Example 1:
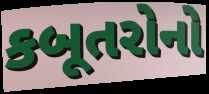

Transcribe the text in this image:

કબૂતરોનો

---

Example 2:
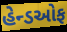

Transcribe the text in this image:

હેન્ડઓફ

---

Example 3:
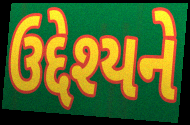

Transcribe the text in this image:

ઉદ્દેશ્યને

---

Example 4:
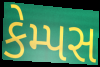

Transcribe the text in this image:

કેમ્પસ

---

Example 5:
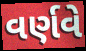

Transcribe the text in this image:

વર્ણવે